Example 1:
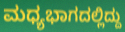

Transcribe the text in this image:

ಮಧ್ಯಭಾಗದಲ್ಲಿದ್ದು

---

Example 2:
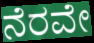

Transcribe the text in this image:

ನೆರವೇ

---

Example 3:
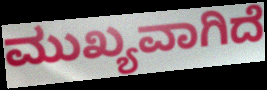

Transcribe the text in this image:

ಮುಖ್ಯವಾಗಿದೆ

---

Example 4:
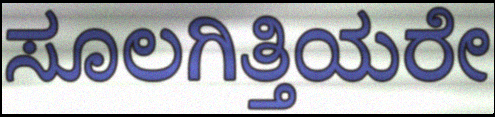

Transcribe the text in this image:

ಸೂಲಗಿತ್ತಿಯರೇ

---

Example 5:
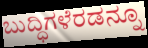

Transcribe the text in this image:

ಬುದ್ಧಿಗಳೆರಡನ್ನೂ